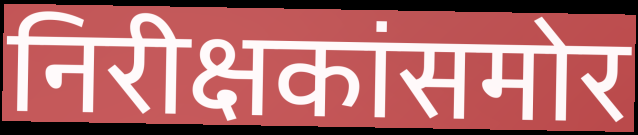
निरीक्षकांसमोर